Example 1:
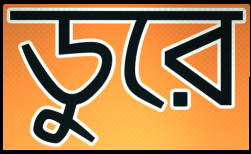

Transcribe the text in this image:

ডুরে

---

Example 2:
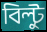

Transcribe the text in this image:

বিল্টু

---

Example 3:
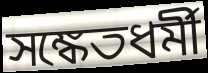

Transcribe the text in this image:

সঙ্কেতধর্মী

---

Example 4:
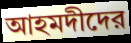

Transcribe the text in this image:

আহমদীদের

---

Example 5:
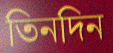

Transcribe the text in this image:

তিনদিন